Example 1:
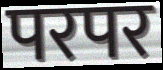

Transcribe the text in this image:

परपर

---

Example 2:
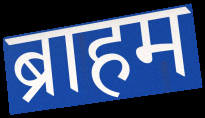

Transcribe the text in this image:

ब्राहम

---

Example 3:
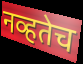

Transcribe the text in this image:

नव्हतेच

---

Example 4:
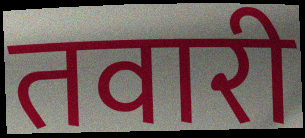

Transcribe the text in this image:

तवारी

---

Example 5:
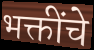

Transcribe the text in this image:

भक्तींचे